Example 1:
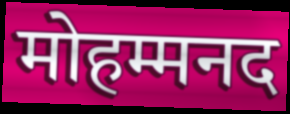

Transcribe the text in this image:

मोहम्मनद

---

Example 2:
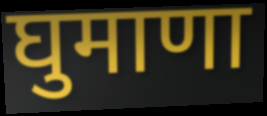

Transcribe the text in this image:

घुमाणा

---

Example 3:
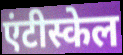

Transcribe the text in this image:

एंटीस्केल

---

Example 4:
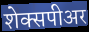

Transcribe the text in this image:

शेक्सपीअर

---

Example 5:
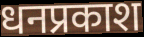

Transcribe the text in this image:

धनप्रकाश